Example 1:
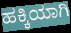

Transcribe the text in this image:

ಹಕ್ಕಿಯಾಗಿ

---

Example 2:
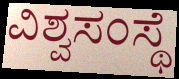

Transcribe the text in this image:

ವಿಶ್ವಸಂಸ್ಥೆ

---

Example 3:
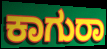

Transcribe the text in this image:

ಕಾಗುರಾ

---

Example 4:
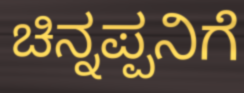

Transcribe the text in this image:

ಚಿನ್ನಪ್ಪನಿಗೆ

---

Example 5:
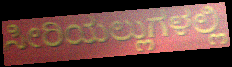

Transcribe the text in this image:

ಸೀರಿಯಲ್ಲುಗಳಲ್ಲಿ